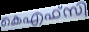
കെഎഫ്സി